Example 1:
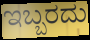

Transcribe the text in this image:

ಇಬ್ಬರದು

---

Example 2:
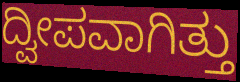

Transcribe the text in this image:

ದ್ವೀಪವಾಗಿತ್ತು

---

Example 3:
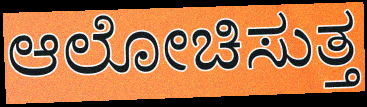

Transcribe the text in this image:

ಆಲೋಚಿಸುತ್ತ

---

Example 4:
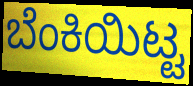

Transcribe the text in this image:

ಬೆಂಕಿಯಿಟ್ಟ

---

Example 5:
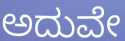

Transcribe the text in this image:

ಅದುವೇ